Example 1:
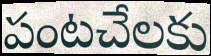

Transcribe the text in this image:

పంటచేలకు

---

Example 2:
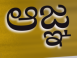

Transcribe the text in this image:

ఆజ్ఞ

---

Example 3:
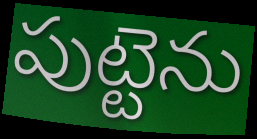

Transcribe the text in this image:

పుట్టెను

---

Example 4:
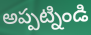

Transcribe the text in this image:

అప్పట్నిండి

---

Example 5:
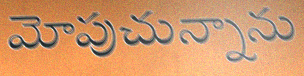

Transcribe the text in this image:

మోపుచున్నాను